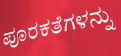
ಪೂರಕತೆಗಳನ್ನು